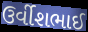
ઉર્વીશભાઈ